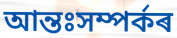
আন্তঃসম্পৰ্কৰ